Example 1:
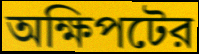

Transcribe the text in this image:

অক্ষিপটের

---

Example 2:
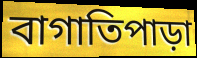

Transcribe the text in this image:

বাগাতিপাড়া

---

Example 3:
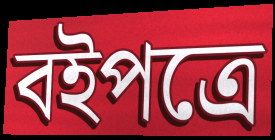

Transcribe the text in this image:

বইপত্রে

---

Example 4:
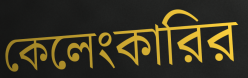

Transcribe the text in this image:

কেলেংকারির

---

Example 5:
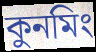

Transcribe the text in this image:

কুনমিং